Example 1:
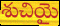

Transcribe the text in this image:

శుచియై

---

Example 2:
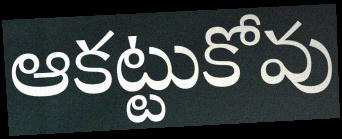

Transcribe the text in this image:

ఆకట్టుకోవు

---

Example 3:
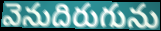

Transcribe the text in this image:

వెనుదిరుగును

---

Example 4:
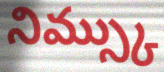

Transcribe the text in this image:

నిమ్స్కు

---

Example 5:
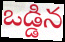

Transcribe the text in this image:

ఒడ్డిన